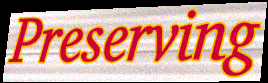
Preserving